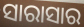
ସାରାସାର